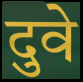
दुवे